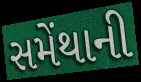
સમેંથાની